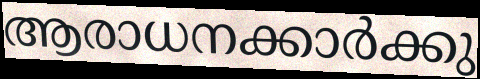
ആരാധനക്കാർക്കു